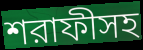
শরাফীসহ